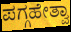
ಪಗ್ಗಹೇತ್ವಾ